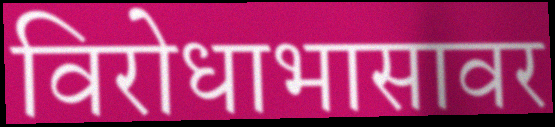
विरोधाभासावर